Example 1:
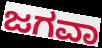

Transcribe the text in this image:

ಜಗವಾ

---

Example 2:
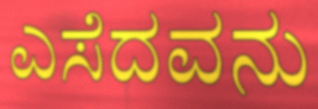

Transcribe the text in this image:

ಎಸೆದವನು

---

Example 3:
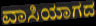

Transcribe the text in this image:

ವಾಸಿಯಾಗದ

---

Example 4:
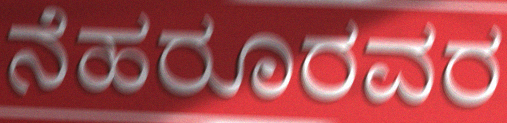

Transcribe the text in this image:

ನೆಹರೂರವರ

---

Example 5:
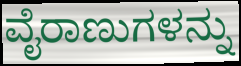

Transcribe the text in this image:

ವೈರಾಣುಗಳನ್ನು